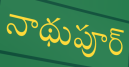
నాథుపూర్